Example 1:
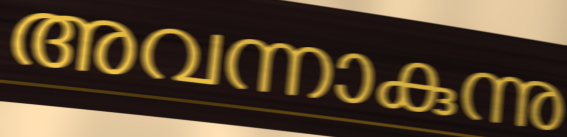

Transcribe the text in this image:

അവന്നാകുന്നു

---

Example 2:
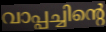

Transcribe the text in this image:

വാപ്പച്ചിന്റെ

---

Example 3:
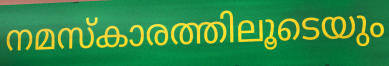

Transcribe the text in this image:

നമസ്കാരത്തിലൂടെയും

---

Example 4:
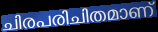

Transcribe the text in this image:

ചിരപരിചിതമാണ്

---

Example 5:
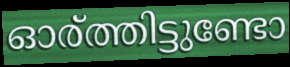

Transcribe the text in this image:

ഓര്ത്തിട്ടുണ്ടോ